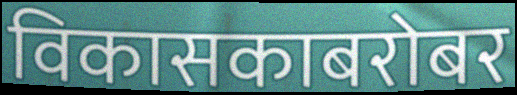
विकासकाबरोबर